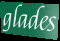
glades